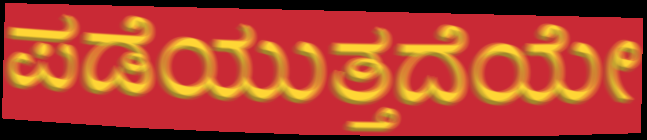
ಪಡೆಯುತ್ತದೆಯೇ